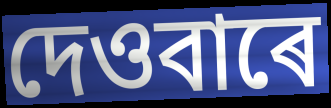
দেওবাৰে